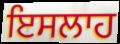
ਇਸਲਾਹ